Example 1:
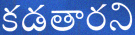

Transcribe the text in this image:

కడతారని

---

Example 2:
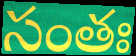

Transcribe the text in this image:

సంతః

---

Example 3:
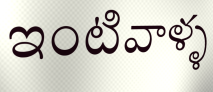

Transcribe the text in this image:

ఇంటివాళ్ళ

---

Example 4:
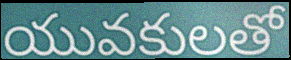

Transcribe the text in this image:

యువకులతో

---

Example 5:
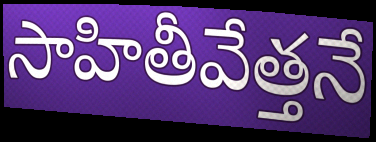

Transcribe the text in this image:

సాహితీవేత్తనే